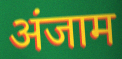
अंजाम